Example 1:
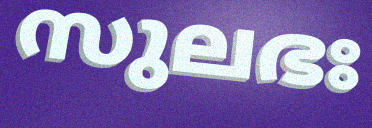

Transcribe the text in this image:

സുലഭഃ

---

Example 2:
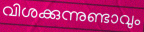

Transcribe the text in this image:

വിശക്കുന്നുണ്ടാവും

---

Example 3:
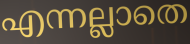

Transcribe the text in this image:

എന്നല്ലാതെ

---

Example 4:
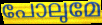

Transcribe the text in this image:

പോലുമേ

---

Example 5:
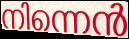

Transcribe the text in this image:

നിന്നെൻ